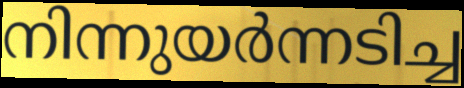
നിന്നുയർന്നടിച്ച